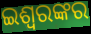
ଇଶ୍ୱରଙ୍କର